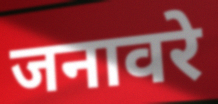
जनावरे